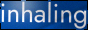
inhaling